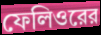
ফেলিওরের